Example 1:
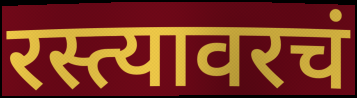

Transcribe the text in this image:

रस्त्यावरचं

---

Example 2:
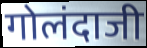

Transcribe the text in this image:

गोलंदाजी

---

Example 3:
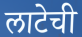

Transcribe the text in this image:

लाटेची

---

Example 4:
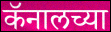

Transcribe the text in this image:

कॅनालच्या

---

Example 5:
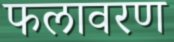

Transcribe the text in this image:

फलावरण